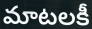
మాటలకీ